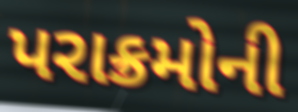
પરાક્રમોની